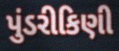
પુંડરીકિણી